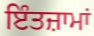
ਇੰਤਜ਼ਾਮਾਂ